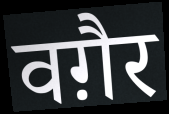
वग़ैर